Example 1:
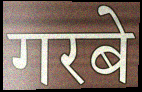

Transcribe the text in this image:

गरबे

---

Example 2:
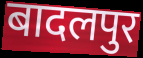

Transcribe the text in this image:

बादलपुर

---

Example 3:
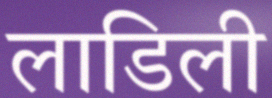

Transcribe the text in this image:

लाडिली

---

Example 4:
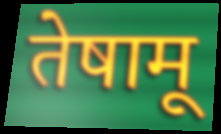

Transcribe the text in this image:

तेषामू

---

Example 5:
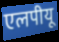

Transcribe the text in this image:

एलपीयू